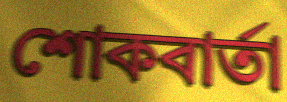
শোকবার্তা